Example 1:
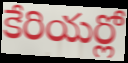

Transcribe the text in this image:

కేరియర్లో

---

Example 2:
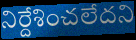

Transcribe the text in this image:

నిర్దేశించలేదని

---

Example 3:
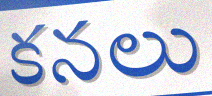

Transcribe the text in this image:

కనలు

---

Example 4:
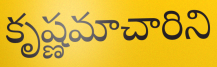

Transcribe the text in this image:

కృష్ణమాచారిని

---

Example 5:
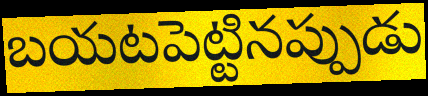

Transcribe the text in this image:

బయటపెట్టినప్పుడు